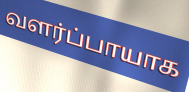
வளர்ப்பாயாக